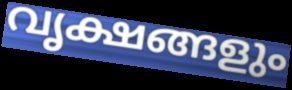
വൃക്ഷങ്ങളും